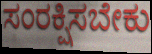
ಸಂರಕ್ಷಿಸಬೇಕು